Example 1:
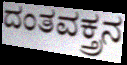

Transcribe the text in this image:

ದಂತವಕ್ತ್ರನ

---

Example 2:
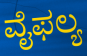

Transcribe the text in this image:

ವೈಫಲ್ಯ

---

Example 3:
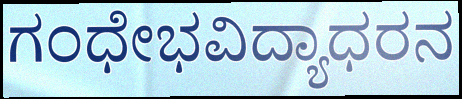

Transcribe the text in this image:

ಗಂಧೇಭವಿದ್ಯಾಧರನ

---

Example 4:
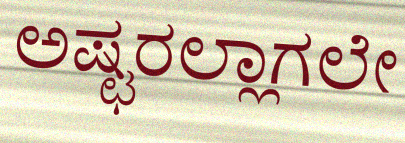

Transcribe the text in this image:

ಅಷ್ಟರಲ್ಲಾಗಲೇ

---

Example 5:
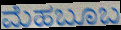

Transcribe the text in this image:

ಮೆಹಬೂಬ